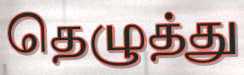
தெழுத்து